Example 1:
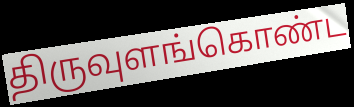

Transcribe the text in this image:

திருவுளங்கொண்ட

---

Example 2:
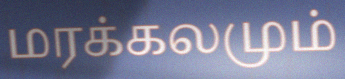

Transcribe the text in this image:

மரக்கலமும்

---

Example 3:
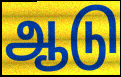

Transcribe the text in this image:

ஆடு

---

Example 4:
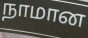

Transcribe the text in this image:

நாமான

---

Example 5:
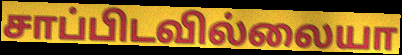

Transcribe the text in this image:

சாப்பிடவில்லையா